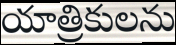
యాత్రికులను